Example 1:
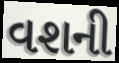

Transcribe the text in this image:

વશની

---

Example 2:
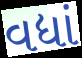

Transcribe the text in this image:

વદ્યાં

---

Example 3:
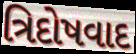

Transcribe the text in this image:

ત્રિદોષવાદ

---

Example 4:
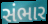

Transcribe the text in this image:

સંભાર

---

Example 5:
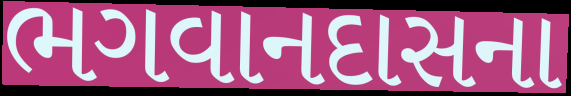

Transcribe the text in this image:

ભગવાનદાસના